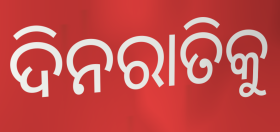
ଦିନରାତିକୁ